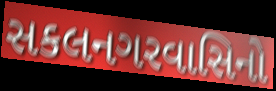
સકલનગરવાસિનો